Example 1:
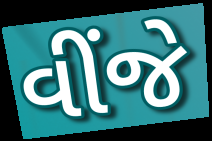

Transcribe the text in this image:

વીંજે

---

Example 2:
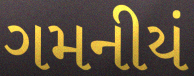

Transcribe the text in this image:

ગમનીયં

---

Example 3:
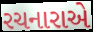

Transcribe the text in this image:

રચનારાએ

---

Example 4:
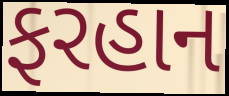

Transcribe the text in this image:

ફરહાન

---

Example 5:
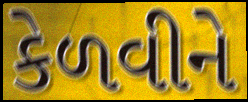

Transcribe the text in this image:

કેળવીને